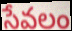
సేవలం